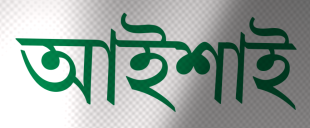
আইশাই